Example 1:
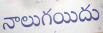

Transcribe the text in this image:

నాలుగయిదు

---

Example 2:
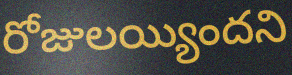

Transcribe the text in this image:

రోజులయ్యిందని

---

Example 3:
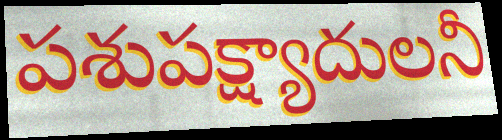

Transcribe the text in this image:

పశుపక్ష్యాదులనీ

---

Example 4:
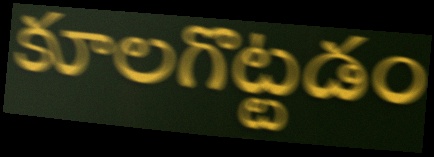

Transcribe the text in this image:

కూలగొట్టడం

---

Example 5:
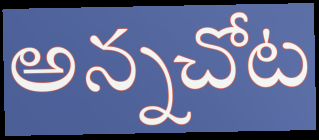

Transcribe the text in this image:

అన్నచోట